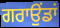
ਗਰਾਉਂਡਾਂ